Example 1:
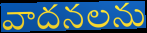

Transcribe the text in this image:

వాదనలను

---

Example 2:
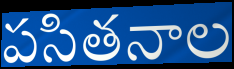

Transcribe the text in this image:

పసితనాల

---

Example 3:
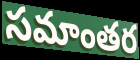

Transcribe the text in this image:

సమాంతర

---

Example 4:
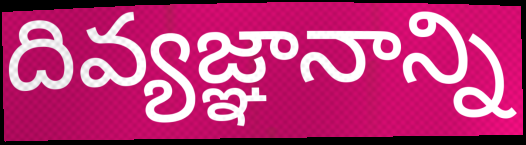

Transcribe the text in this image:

దివ్యజ్ఞానాన్ని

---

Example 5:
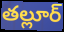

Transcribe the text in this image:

తల్లూర్